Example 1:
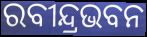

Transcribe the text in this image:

ରବୀନ୍ଦ୍ରଭବନ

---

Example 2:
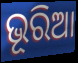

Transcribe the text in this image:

ଭୂରିଆ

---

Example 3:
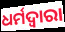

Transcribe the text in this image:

ଧର୍ମଦ୍ୱାରା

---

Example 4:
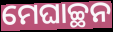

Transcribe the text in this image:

ମେଘାଚ୍ଛନ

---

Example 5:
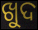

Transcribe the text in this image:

ଖୁଦ